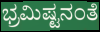
ಭ್ರಮಿಷ್ಟನಂತೆ